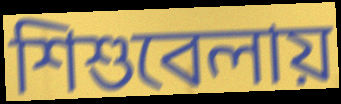
শিশুবেলায়